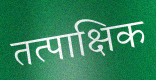
तत्पाक्षिक